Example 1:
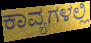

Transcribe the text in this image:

ಕಾವ್ಯಗಳಲ್ಲಿ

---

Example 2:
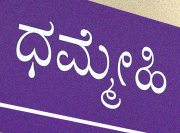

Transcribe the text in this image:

ಧಮ್ಮೇಹಿ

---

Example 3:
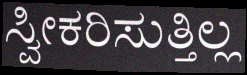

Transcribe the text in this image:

ಸ್ವೀಕರಿಸುತ್ತಿಲ್ಲ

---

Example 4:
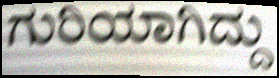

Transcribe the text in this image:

ಗುರಿಯಾಗಿದ್ದು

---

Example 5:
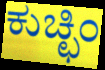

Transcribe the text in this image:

ಕುಚ್ಛಿಂ